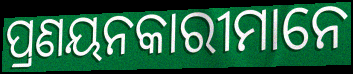
ପ୍ରଣୟନକାରୀମାନେ